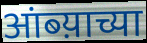
आंब्य़ाच्या